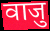
वाजु